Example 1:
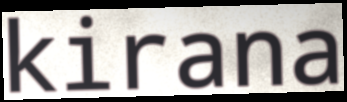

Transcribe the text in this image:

kirana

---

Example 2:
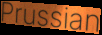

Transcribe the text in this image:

Prussian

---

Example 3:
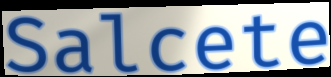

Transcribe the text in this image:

Salcete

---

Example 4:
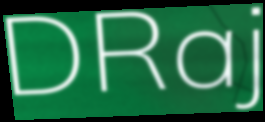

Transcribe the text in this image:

DRaj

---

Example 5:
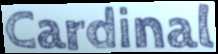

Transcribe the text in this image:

Cardinal